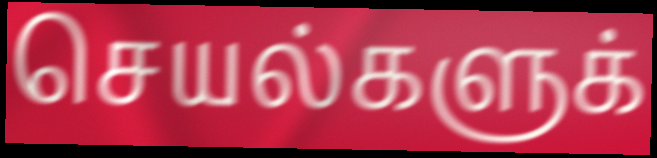
செயல்களுக்